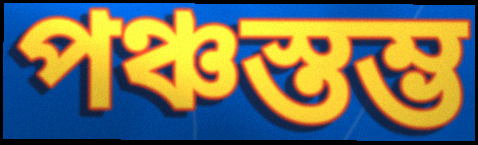
পঞ্চস্তম্ভ